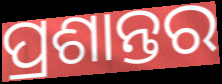
ପ୍ରଶାନ୍ତର